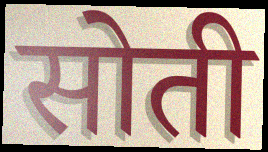
सोती